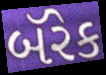
બૅરેક